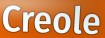
Creole